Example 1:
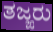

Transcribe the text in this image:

ತಜ್ಙರು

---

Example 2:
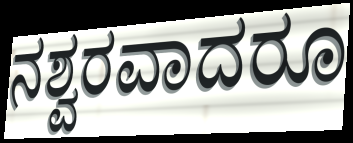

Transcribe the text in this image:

ನಶ್ವರವಾದರೂ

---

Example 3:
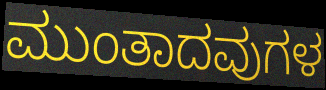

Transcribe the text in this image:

ಮುಂತಾದವುಗಳ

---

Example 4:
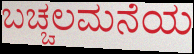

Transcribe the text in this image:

ಬಚ್ಚಲಮನೆಯ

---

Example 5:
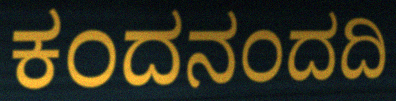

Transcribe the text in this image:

ಕಂದನಂದದಿ